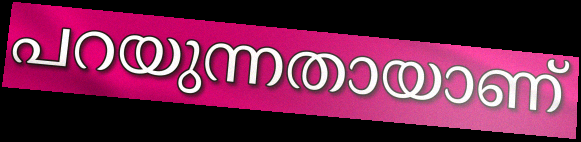
പറയുന്നതായാണ്